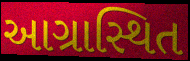
આગ્રાસ્થિત